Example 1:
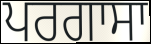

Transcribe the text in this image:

ਪਰਗਾਸਾ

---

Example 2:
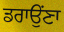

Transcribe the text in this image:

ਡਰਾਉਂਣਾ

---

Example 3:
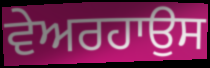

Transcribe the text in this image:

ਵੇਅਰਹਾਉਸ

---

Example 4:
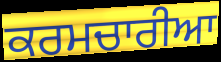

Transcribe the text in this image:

ਕਰਮਚਾਰੀਆ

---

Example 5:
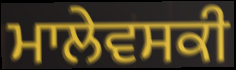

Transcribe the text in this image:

ਮਾਲੇਵਸਕੀ